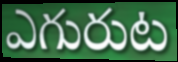
ఎగురుట